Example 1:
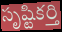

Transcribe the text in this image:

సృష్టికర్తి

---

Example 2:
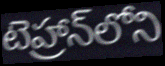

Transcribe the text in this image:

టెహ్రాన్‌లోని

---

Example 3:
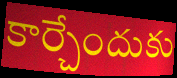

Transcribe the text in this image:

కార్చేందుకు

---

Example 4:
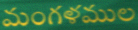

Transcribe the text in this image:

మంగళముల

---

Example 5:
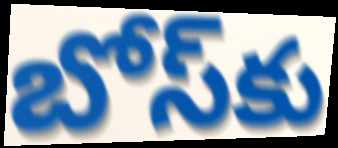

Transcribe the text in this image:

బోస్‌కు